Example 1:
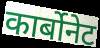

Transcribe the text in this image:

कार्बोनेट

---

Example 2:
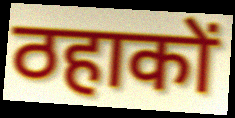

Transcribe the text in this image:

ठहाकों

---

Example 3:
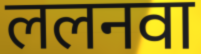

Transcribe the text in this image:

ललनवा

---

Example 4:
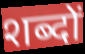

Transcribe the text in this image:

शब्दों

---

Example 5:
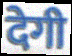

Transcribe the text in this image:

देगी